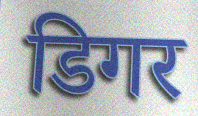
डिगर